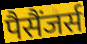
पैसैंजर्स